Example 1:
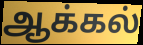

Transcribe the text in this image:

ஆக்கல்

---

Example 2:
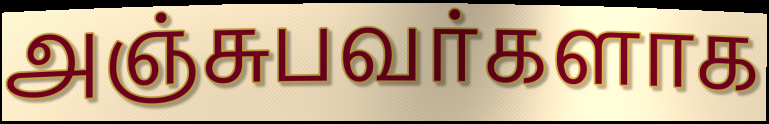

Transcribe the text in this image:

அஞ்சுபவர்களாக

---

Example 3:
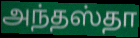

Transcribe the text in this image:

அந்தஸ்தா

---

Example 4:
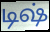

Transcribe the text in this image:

டிஷ்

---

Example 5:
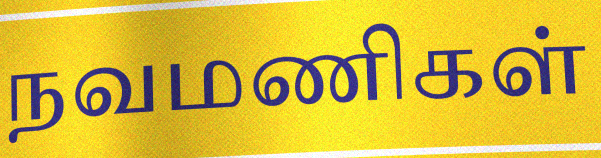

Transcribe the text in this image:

நவமணிகள்